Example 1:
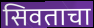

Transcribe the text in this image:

सिवताचा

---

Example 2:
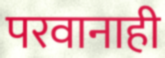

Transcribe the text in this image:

परवानाही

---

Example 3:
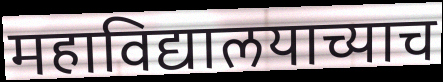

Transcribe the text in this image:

महाविद्यालयाच्याच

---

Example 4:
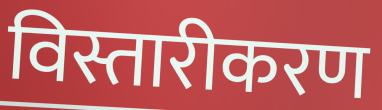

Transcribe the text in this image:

विस्तारीकरण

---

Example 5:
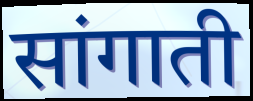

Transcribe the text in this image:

सांगाती